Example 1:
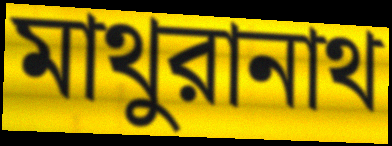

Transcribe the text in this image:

মাথুরানাথ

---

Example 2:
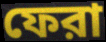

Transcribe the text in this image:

ফেরা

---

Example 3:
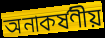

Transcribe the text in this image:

অনাকর্ষণীয়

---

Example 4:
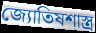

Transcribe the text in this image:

জ্যোতিষশাস্ত্র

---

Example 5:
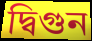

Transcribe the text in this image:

দ্বিগুন